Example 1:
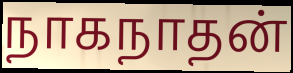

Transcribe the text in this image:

நாகநாதன்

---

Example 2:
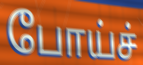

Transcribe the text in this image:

போய்ச்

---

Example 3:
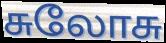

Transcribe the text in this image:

சுலோசு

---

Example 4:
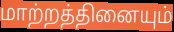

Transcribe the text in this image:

மாற்றத்தினையும்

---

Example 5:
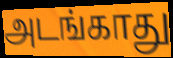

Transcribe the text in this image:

அடங்காது